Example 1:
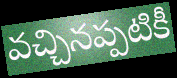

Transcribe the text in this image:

వచ్చినప్పటికీ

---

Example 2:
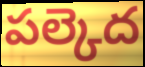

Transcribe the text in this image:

పల్కెద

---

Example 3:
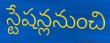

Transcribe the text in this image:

స్టేషన్లనుంచి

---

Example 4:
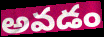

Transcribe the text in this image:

అవడం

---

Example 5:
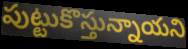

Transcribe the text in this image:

పుట్టుకొస్తున్నాయని